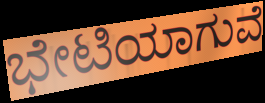
ಭೇಟಿಯಾಗುವೆ